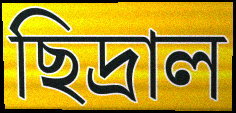
ছিদ্রাল